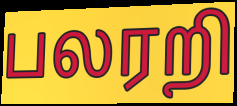
பலரறி